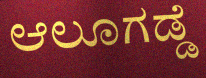
ಆಲೂಗಡ್ಡೆ